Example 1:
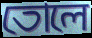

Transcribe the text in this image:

তোলে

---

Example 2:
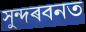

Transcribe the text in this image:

সুন্দৰবনত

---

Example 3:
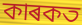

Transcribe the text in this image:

কাৰকত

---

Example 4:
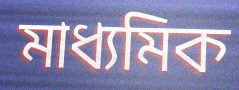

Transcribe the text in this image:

মাধ্যমিক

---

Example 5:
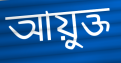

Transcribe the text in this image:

আয়ুক্ত